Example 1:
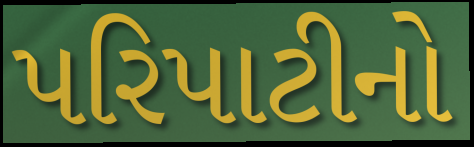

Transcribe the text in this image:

પરિપાટીનો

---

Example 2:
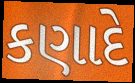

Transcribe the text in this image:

કણાદે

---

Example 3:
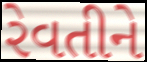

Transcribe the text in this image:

રેવતીને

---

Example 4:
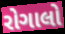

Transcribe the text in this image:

રોગાલો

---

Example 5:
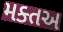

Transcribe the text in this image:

મક્તઅ